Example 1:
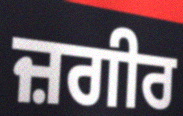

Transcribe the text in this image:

ਜ਼ਗੀਰ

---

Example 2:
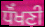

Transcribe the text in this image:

ਧੌਁਖਣੀ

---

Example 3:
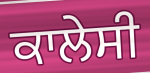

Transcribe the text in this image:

ਕਾਲੇਸੀ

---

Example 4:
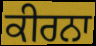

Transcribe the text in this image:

ਕੀਰਨਾ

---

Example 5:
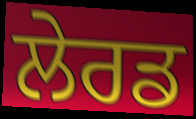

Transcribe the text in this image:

ਲੇਰਡ